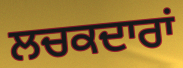
ਲਚਕਦਾਰਾਂ